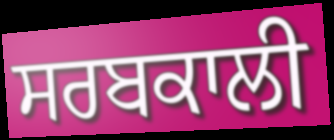
ਸਰਬਕਾਲੀ